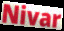
Nivar